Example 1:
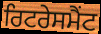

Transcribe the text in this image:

ਰਿਟਰੇਸਮੈਂਟ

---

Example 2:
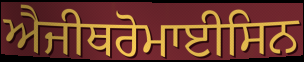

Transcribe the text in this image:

ਐਜੀਥਰੋਮਾਈਸਿਨ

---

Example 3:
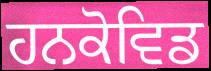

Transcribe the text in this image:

ਹਨਕੋਵਿਡ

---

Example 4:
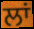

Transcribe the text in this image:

ਲਾਂ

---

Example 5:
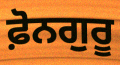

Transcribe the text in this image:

ਫ਼ੋਨਗੁਰੂ